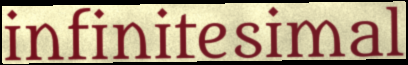
infinitesimal